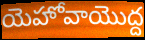
యెహోవాయొద్ద